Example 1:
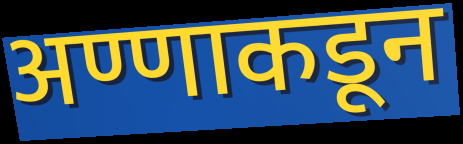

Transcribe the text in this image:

अण्णाकडून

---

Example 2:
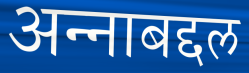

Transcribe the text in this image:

अन्‍नाबद्दल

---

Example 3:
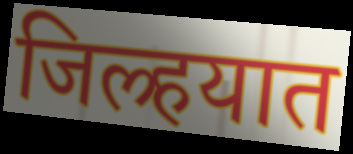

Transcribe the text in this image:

जिल्हयात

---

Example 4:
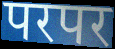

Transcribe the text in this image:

परपर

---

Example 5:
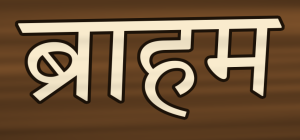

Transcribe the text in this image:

ब्राहम